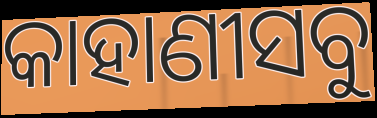
କାହାଣୀସବୁ